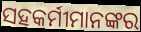
ସହକର୍ମୀମାନଙ୍କର